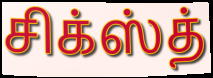
சிக்ஸ்த்